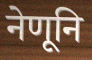
नेणूनि